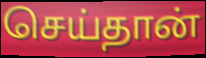
செய்தான்